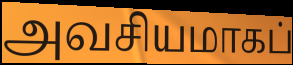
அவசியமாகப்